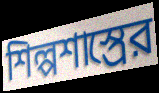
শিল্পশাস্ত্রের